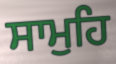
ਸਾਮੁਹਿ